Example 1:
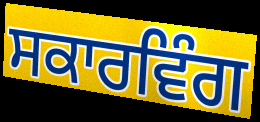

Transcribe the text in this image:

ਸਕਾਰਵਿੰਗ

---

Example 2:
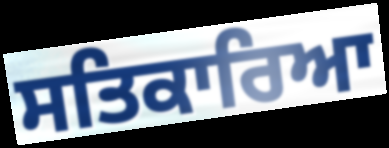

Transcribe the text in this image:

ਸਤਿਕਾਰਿਆ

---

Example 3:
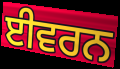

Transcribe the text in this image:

ਈਵਰਨ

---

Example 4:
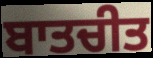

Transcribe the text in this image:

ਬਾਤਚੀਤ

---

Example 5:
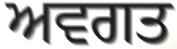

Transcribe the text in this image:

ਅਵਗਤ